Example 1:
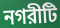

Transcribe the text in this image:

নগরীটি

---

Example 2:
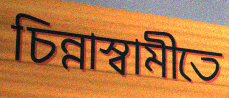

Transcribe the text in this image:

চিন্নাস্বামীতে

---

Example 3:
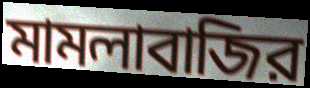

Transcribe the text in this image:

মামলাবাজির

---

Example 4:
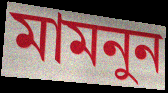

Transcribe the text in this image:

মামনুন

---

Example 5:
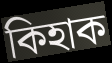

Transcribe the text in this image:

কিহাক